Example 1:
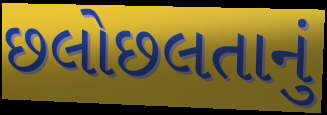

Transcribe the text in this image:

છલોછલતાનું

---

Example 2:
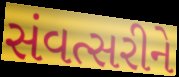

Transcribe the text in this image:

સંવત્સરીને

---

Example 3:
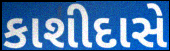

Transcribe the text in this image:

કાશીદાસે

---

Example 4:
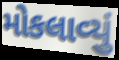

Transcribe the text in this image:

મોકલાવ્યું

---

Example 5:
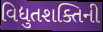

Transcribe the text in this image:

વિદ્યુતશક્તિની